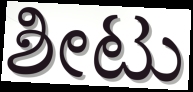
ಶೀಟು